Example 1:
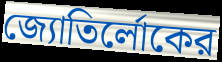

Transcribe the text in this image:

জ্যোতির্লোকের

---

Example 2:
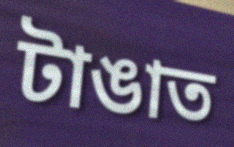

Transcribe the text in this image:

টাঙাত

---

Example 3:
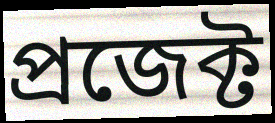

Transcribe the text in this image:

প্রজেক্ট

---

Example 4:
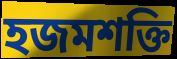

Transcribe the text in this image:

হজমশক্তি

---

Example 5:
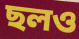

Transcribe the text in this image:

ছলও